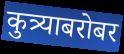
कुत्र्याबरोबर